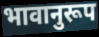
भावानुरूप